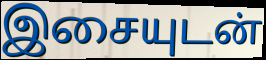
இசையுடன்